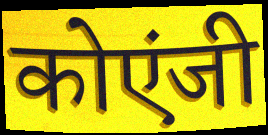
कोएंजी